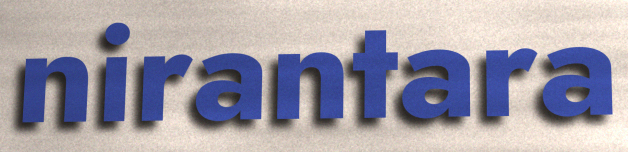
nirantara